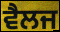
ਵੈਲਜ